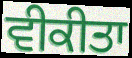
ਵੀਕੀਤਾ